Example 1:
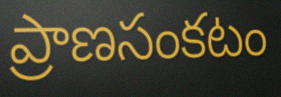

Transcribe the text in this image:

ప్రాణసంకటం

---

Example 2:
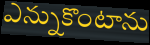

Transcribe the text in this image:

ఎన్నుకొంటాను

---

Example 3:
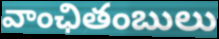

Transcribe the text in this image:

వాంఛితంబులు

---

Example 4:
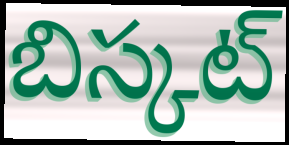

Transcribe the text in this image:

బిస్కట్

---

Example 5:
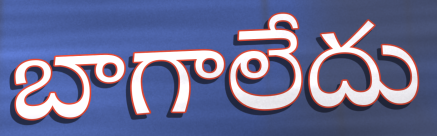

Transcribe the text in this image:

బాగాలేదు